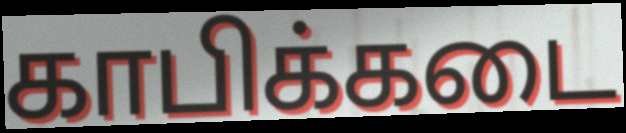
காபிக்கடை